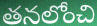
తనలోంచి